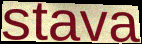
stava